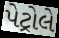
પેટ્રોલે